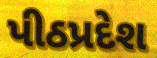
પીઠપ્રદેશ